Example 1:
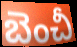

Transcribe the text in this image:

బెంచీ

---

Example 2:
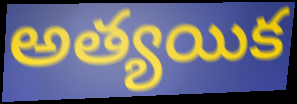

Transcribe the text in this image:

అత్యయిక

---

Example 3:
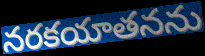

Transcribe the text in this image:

నరకయాతనను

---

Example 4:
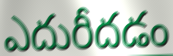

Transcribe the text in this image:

ఎదురీదడం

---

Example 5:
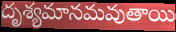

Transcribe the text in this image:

దృశ్యమానమవుతాయి